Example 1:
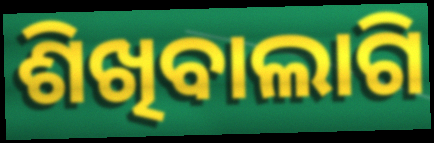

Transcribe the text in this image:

ଶିଖିବାଲାଗି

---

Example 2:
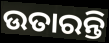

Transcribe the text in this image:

ଉତାରନ୍ତି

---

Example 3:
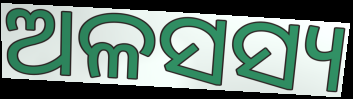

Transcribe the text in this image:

ଅଳସସ୍ୟ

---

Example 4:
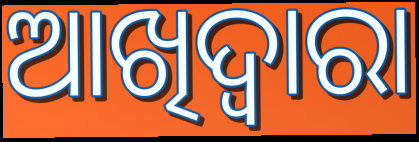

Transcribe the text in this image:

ଆଖିଦ୍ୱାରା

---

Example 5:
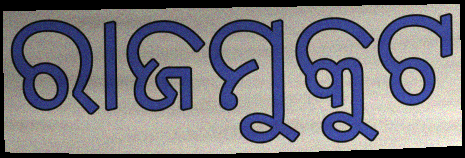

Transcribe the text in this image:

ରାଜମୁକୁଟ